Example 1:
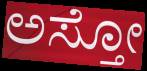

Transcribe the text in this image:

ಅಸ್ತೋ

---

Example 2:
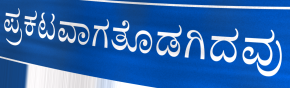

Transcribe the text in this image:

ಪ್ರಕಟವಾಗತೊಡಗಿದವು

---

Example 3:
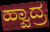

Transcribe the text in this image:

ಹ್ವಾದ್ರ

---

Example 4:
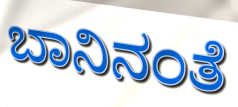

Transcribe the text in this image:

ಬಾನಿನಂತೆ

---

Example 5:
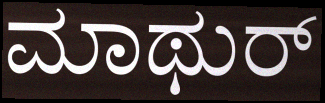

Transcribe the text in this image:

ಮಾಥುರ್